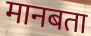
मानबता